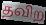
தவிற